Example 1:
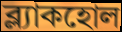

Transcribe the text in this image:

ব্ল্যাকহোল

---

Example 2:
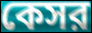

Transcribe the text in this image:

কেসর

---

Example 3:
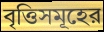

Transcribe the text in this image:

বৃত্তিসমূহের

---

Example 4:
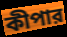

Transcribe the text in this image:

কীপার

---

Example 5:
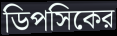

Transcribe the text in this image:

ডিপসিকের